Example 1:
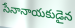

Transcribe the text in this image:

సేనానాయకుడైన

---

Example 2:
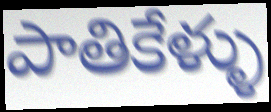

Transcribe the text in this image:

పాతికేళ్ళు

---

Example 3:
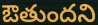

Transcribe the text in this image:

ఔతుందని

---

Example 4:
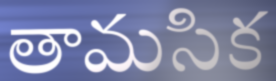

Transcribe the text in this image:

తామసిక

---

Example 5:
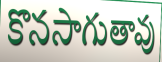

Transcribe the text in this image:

కొనసాగుతావు